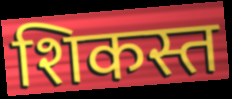
शिकस्त